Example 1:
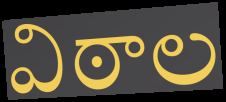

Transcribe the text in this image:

విఠాల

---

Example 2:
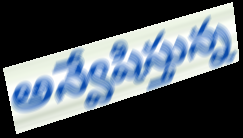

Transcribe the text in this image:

అన్వేషిస్తున్న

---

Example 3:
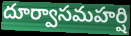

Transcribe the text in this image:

దూర్వాసమహర్షి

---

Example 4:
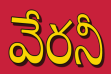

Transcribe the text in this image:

వేరనీ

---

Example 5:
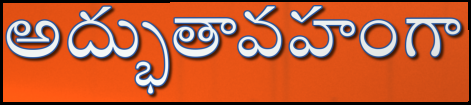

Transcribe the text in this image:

అద్భుతావహంగా